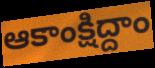
ఆకాంక్షిద్దాం